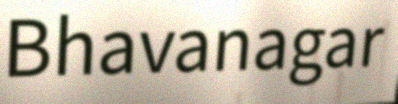
Bhavanagar